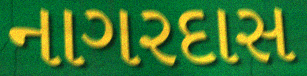
નાગરદાસ